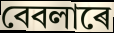
বেবলাৰে